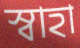
স্বাহা